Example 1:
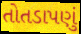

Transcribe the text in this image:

તોતડાપણું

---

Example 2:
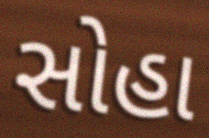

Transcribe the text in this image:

સોહા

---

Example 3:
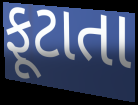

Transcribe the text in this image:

ફૂટાતા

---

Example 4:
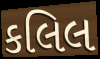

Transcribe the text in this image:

કલિલ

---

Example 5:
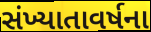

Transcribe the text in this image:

સંખ્યાતાવર્ષના